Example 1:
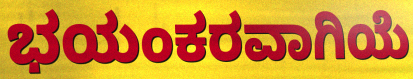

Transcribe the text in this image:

ಭಯಂಕರವಾಗಿಯೆ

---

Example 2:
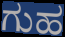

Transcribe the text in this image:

ಗುಹ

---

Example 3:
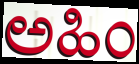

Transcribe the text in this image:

ಅಹಿಂ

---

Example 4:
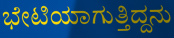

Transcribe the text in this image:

ಭೇಟಿಯಾಗುತ್ತಿದ್ದನು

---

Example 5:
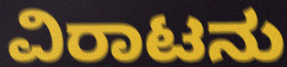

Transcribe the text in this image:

ವಿರಾಟನು